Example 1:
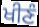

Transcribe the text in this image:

ਖੀਣੰ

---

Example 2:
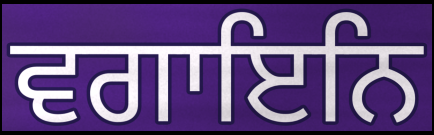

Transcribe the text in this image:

ਵਗਾਇਨਿ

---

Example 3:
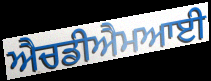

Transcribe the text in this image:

ਐਚਡੀਐਮਆਈ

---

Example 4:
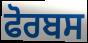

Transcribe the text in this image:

ਫੋਰਬਸ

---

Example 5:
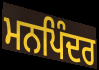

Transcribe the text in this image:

ਮਨਪਿੰਦਰ